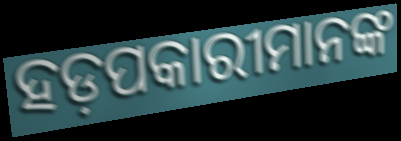
ହଡ଼ପକାରୀମାନଙ୍କ